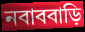
নবাববাড়ি